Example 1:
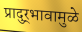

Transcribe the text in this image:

प्रादुर्भावामुळे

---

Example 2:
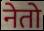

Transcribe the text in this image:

नेतो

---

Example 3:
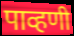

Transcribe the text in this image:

पाव्हणी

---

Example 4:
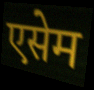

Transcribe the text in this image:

एसेम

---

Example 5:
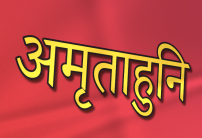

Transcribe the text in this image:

अमृताहुनि